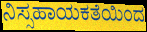
ನಿಸ್ಸಹಾಯಕತೆಯಿಂದ